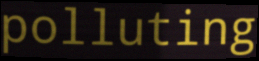
polluting